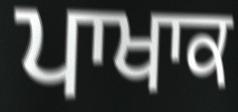
ਪਾਖਾਕ